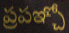
ప్రపఞ్చో